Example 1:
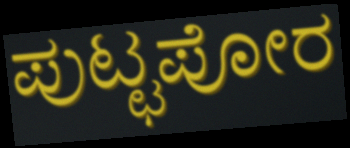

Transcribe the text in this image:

ಪುಟ್ಟಪೋರ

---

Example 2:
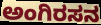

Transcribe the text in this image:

ಅಂಗಿರಸನ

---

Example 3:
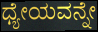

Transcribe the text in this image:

ಧ್ಯೇಯವನ್ನೇ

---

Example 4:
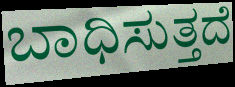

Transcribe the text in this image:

ಬಾಧಿಸುತ್ತದೆ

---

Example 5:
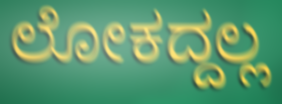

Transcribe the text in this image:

ಲೋಕದ್ದಲ್ಲ